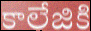
కాలేజికి